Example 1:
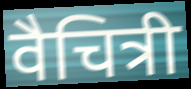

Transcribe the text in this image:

वैचित्री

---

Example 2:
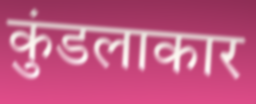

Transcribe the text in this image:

कुंडलाकार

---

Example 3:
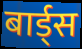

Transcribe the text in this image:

बार्ड्स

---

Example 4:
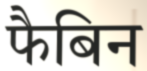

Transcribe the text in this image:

फैबिन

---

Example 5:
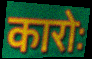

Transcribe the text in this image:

कारोः